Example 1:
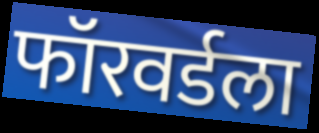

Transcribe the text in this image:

फॉरवर्डला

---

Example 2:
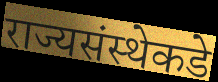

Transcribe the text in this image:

राज्यसंस्थेकडे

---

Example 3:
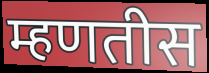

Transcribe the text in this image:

म्हणतीस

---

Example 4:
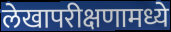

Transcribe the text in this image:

लेखापरीक्षणामध्ये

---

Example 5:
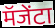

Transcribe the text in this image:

मॅजेंटा